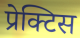
प्रेक्टिस